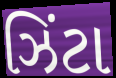
ઝિંટા